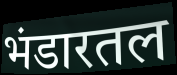
भंडारतल